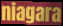
niagara